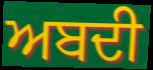
ਅਬਦੀ